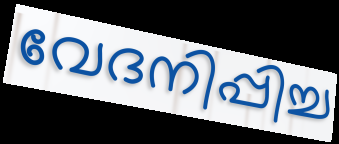
വേദനിപ്പിച്ച